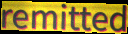
remitted